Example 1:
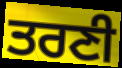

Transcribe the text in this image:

ਤਰਣੀ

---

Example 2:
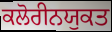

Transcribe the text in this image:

ਕਲੋਰੀਨਯੁਕਤ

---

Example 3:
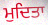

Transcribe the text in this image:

ਮੁਦਿਤਾ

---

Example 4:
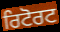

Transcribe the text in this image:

ਰਿਟੋਰਟ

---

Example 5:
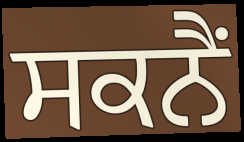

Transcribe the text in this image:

ਸਕਨੈਂ